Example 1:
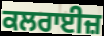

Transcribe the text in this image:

ਕਲਰਾਈਜ਼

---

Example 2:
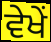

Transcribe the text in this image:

ਵੇਖੇਂ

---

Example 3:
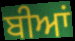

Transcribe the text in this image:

ਬੀਆਂ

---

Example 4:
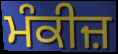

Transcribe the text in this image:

ਮੰਕੀਜ਼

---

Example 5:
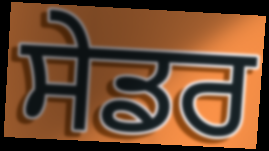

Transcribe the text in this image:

ਸੇਡਰ